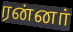
ரன்னர்